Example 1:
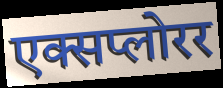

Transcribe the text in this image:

एक्सप्लोरर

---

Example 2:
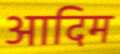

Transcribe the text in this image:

आदिम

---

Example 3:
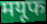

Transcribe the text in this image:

मयूफ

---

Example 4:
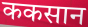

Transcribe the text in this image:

ककसान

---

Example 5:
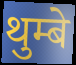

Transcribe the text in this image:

थुम्बे